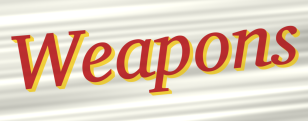
Weapons